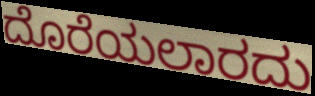
ದೊರೆಯಲಾರದು